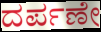
ದರ್ಪಣೇ